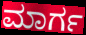
ಮಾರ್ಗ